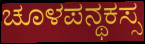
ಚೂಳಪನ್ಥಕಸ್ಸ